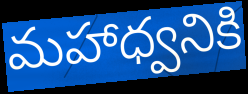
మహాధ్వనికి